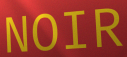
NOIR